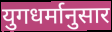
युगधर्मानुसार